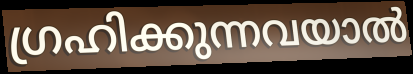
ഗ്രഹിക്കുന്നവയാൽ